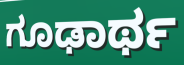
ಗೂಢಾರ್ಥ